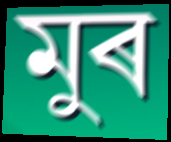
মুৰ